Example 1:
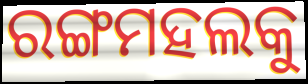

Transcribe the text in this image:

ରଙ୍ଗମହଲକୁ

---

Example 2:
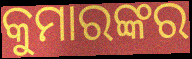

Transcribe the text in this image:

କୁମାରଙ୍କର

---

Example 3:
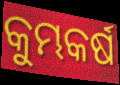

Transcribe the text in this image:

କୁମ୍ଭକର୍ଷ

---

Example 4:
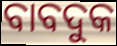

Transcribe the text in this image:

ବାବଦୁକ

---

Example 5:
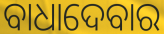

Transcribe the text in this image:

ବାଧାଦେବାର